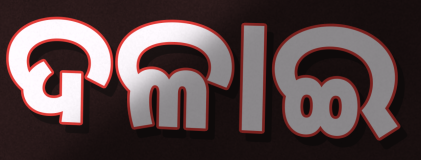
ଦଳାଇ